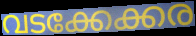
വടക്കേക്കര